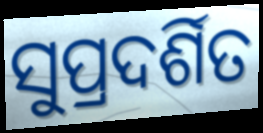
ସୁପ୍ରଦର୍ଶିତ